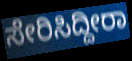
ಸೇರಿಸಿದ್ದೀರಾ